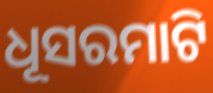
ଧୂସରମାଟି